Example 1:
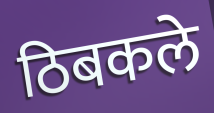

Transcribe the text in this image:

ठिबकले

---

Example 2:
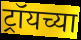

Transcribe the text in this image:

ट्रॉयच्या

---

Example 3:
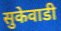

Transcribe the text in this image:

सुकेवाडी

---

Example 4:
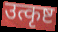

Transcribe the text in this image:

उत्कृष्ट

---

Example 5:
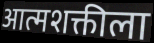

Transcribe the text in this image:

आत्मशक्तीला